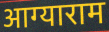
आग्याराम